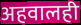
अहवालही